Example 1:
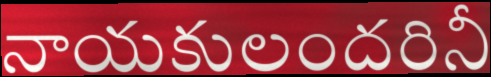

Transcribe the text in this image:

నాయకులందరినీ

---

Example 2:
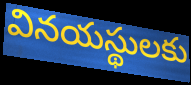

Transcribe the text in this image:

వినయస్థులకు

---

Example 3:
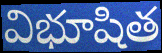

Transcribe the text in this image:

విభూషిత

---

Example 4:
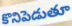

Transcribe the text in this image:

కొనిపెడుతూ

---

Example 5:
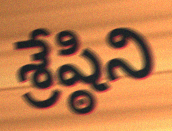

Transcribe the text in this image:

శ్రేష్ఠిని